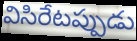
విసిరేటప్పుడు